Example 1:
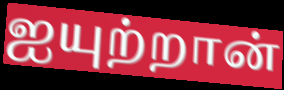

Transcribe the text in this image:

ஐயுற்றான்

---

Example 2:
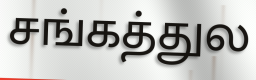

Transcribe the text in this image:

சங்கத்துல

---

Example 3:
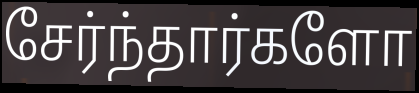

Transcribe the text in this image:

சேர்ந்தார்களோ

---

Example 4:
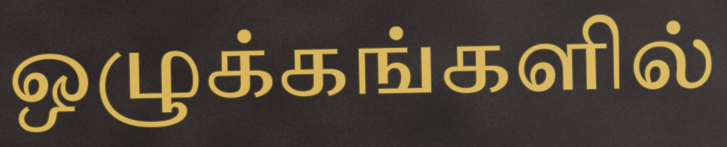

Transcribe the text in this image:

ஒழுக்கங்களில்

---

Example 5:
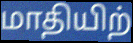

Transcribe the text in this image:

மாதியிற்